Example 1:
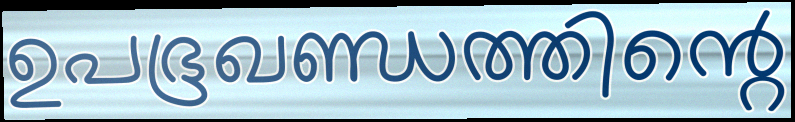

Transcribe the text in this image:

ഉപഭൂഖണ്ഡത്തിന്റെ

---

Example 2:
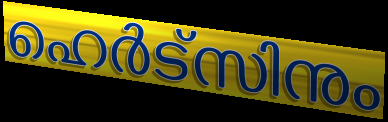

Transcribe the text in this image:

ഹെർട്സിനും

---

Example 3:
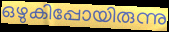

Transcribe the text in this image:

ഒഴുകിപ്പോയിരുന്നു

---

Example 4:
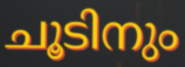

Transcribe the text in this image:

ചൂടിനും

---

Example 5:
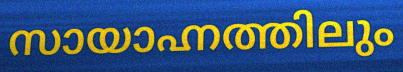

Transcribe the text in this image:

സായാഹ്നത്തിലും